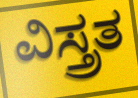
ವಿಸ್ತ್ರತ